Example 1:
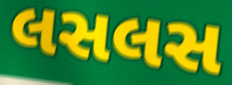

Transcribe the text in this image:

લસલસ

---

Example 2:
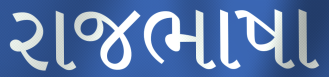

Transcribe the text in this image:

રાજભાષા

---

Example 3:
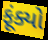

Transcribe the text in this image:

ફૂંક્યો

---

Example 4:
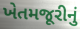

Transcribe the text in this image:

ખેતમજૂરીનું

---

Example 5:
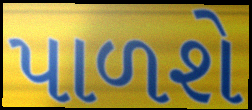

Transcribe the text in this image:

પાળશે